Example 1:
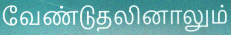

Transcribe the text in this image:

வேண்டுதலினாலும்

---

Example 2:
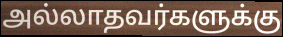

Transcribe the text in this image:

அல்லாதவர்களுக்கு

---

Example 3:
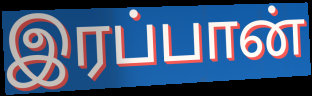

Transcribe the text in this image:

இரப்பான்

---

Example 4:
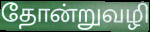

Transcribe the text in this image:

தோன்றுவழி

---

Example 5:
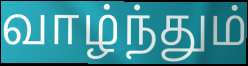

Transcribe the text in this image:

வாழ்ந்தும்